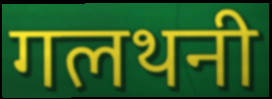
गलथनी